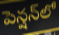
పెన్షన్‌లో